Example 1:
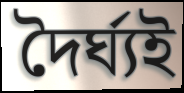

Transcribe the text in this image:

দৈৰ্ঘ্যই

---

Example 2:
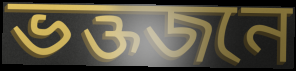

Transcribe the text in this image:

ভক্তজনে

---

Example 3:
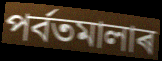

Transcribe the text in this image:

পৰ্বতমালাৰ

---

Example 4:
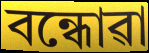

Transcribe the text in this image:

বন্ধোৱা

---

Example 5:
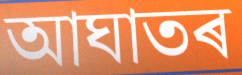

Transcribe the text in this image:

আঘাতৰ